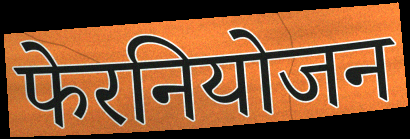
फेरनियोजन